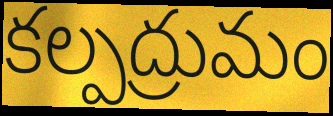
కల్పద్రుమం